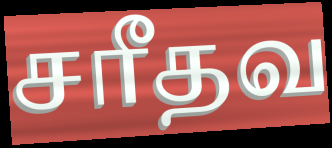
சரீதவ